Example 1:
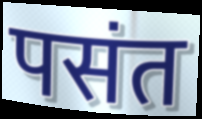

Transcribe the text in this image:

पसंत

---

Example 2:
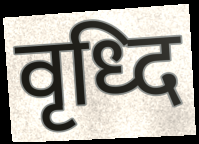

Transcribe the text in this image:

वृध्दि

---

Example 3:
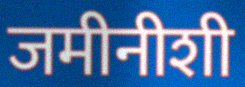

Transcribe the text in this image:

जमीनीशी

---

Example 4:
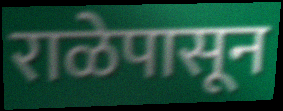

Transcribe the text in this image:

राळेपासून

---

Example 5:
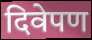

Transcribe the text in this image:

दिवेपण